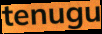
tenugu